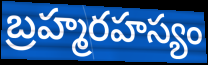
బ్రహ్మరహస్యం